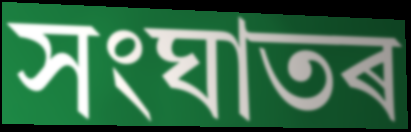
সংঘাতৰ